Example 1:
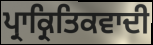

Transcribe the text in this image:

ਪ੍ਰਾਕ੍ਰਿਤਿਕਵਾਦੀ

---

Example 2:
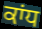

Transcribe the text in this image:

ਕਾਂਧ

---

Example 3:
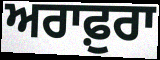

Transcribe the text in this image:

ਅਰਾਫ਼ੁਰਾ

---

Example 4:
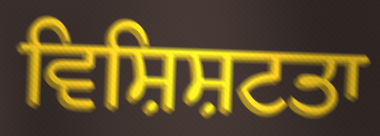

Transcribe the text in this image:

ਵਿਸ਼ਿਸ਼ਟਤਾ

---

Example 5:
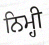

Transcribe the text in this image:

ਨਿਮ੍ਹੀ